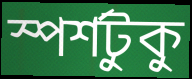
স্পর্শটুকু